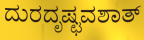
ದುರದೃಷ್ಟವಶಾತ್